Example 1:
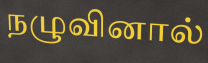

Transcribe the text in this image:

நழுவினால்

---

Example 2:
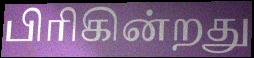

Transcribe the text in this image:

பிரிகின்றது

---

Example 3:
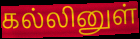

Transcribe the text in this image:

கல்லினுள்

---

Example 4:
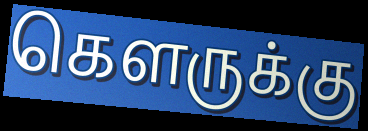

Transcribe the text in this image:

கௌருக்கு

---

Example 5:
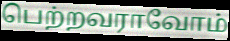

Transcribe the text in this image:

பெற்றவராவோம்